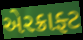
એરક્રાફ્ટ